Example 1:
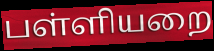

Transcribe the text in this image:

பள்ளியறை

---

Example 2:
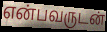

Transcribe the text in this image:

என்பவருடன்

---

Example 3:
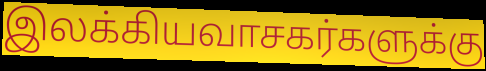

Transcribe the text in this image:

இலக்கியவாசகர்களுக்கு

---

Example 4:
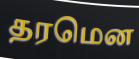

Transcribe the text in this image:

தரமென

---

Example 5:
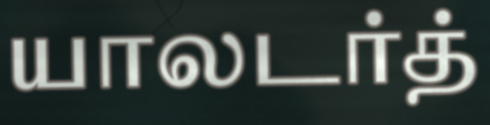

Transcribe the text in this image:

யாலடர்த்